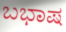
ಬಭಾಷ